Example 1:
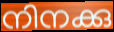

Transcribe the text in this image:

നിനക്കു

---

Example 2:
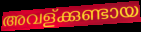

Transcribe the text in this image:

അവള്ക്കുണ്ടായ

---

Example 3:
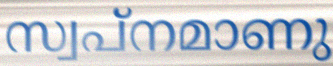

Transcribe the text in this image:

സ്വപ്നമാണു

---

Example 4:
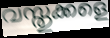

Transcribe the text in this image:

വസ്തുക്കളെ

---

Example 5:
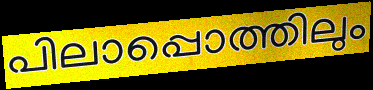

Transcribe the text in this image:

പിലാപ്പൊത്തിലും